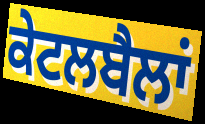
ਕੇਟਲਬੈਲਾਂ